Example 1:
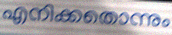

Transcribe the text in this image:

എനിക്കതൊന്നും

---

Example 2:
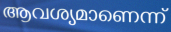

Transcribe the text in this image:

ആവശ്യമാണെന്ന്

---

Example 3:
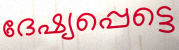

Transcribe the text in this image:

ദേഷ്യപ്പെട്ടെ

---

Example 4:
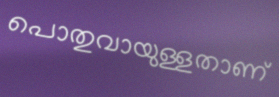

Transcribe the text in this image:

പൊതുവായുള്ളതാണ്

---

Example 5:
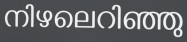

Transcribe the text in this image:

നിഴലെറിഞ്ഞു